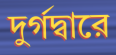
দুর্গদ্বারে